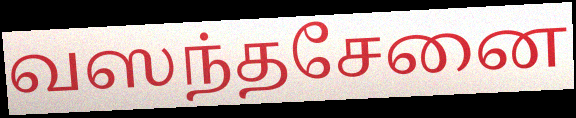
வஸந்தசேனை